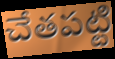
చేతపట్టి